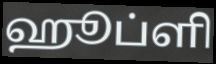
ஹூப்ளி